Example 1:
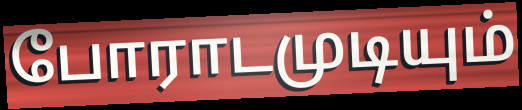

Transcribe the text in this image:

போராடமுடியும்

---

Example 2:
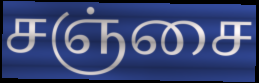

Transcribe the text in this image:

சஞ்சை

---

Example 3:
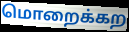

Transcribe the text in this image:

மொறைக்கற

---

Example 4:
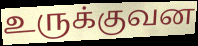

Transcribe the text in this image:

உருக்குவன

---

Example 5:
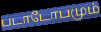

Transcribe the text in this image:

படாடோபமும்